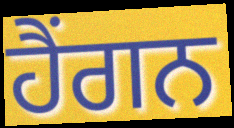
ਹੈਂਗਨ